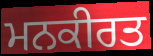
ਮਨਕੀਰਤ